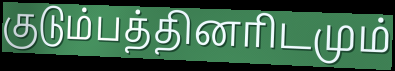
குடும்பத்தினரிடமும்